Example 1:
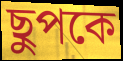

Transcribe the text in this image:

ছুপকে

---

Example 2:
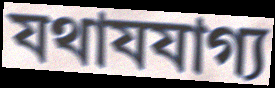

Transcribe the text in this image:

যথাযযাগ্য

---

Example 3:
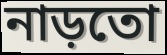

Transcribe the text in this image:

নাড়তো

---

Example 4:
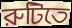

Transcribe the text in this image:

রুটিতে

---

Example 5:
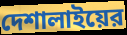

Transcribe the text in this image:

দেশালাইয়ের